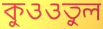
কুওওতুল